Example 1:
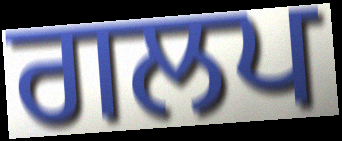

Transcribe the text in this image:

ਗਲਪ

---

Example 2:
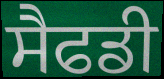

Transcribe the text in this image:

ਸੈਫਡੀ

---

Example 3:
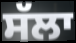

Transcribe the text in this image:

ਸੱਲਾ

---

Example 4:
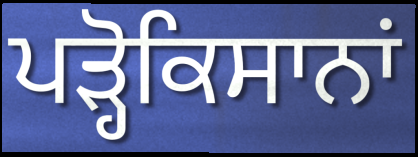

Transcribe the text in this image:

ਪੜ੍ਹੋਕਿਸਾਨਾਂ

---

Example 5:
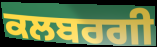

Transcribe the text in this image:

ਕਲਬਰਗੀ